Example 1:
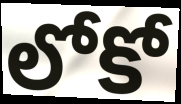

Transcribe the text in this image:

లోకో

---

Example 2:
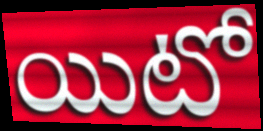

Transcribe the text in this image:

యిటో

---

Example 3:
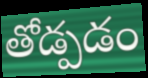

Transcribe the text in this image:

తోడ్పడం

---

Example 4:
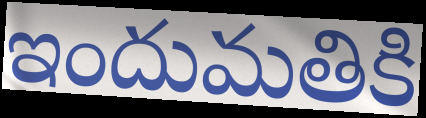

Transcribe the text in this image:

ఇందుమతికి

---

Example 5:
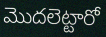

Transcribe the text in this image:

మొదలెట్టారో